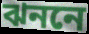
ঝননে